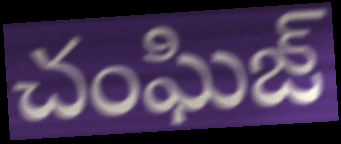
చంఘిజ్